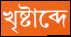
খৃষ্টাব্দে